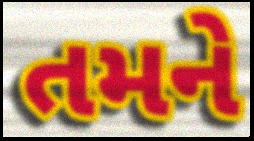
તમને